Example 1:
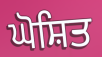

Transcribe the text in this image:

ਘੋਸ਼ਿਤ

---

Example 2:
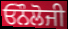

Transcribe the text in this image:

ਓਨੌਲੋਜੀ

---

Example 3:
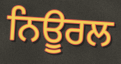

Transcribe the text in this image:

ਨਿਊਰਲ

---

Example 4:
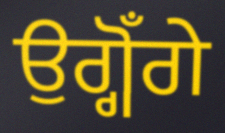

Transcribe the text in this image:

ਉਗ੍ਗੋਁਗੇ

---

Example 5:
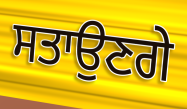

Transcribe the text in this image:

ਸਤਾਉਣਗੇ